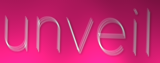
unveil